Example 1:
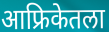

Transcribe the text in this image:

आफ्रिकेतला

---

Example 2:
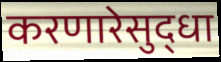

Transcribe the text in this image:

करणारेसुद्धा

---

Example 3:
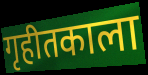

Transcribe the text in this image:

गृहीतकाला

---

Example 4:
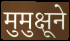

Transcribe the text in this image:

मुमुक्षूने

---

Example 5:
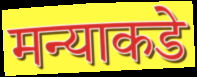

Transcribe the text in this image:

मन्याकडे